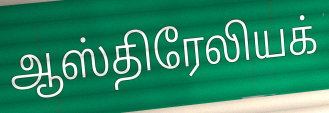
ஆஸ்திரேலியக்